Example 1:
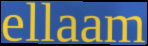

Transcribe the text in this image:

ellaam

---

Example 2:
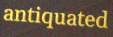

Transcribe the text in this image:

antiquated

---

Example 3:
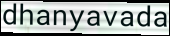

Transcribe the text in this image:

dhanyavada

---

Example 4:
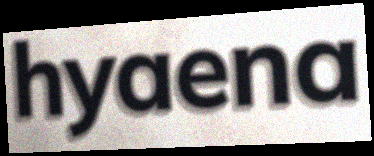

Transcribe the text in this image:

hyaena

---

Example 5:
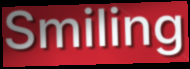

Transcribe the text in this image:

Smiling